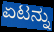
ಏಟನ್ನು